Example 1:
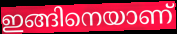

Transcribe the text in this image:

ഇങ്ങിനെയാണ്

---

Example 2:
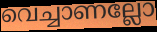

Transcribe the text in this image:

വെച്ചാണല്ലോ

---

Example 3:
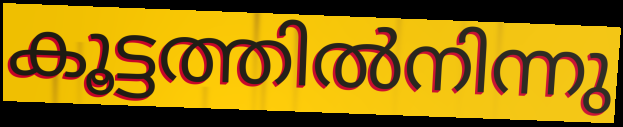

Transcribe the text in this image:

കൂട്ടത്തിൽനിന്നു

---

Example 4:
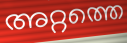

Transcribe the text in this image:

അറ്റത്തെ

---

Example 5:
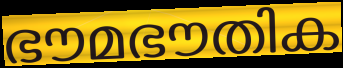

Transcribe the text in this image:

ഭൗമഭൗതിക